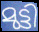
മുട്ടി